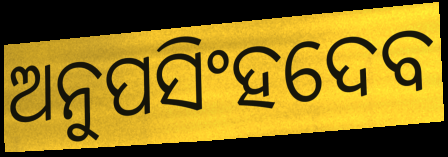
ଅନୁପସିଂହଦେବ